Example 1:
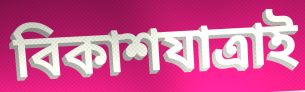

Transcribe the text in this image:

বিকাশযাত্ৰাই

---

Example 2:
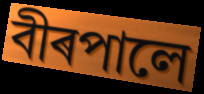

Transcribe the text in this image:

বীৰপালে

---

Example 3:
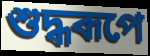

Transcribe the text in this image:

শুদ্ধৰূপে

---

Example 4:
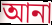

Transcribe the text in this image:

আনা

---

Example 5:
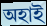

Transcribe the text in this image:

অহাই